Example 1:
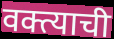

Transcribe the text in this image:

वक्त्याची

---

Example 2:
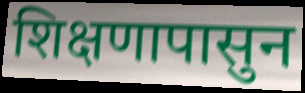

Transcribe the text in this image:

शिक्षणापासुन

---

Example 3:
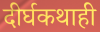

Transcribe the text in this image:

दीर्घकथाही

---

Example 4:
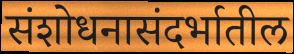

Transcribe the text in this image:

संशोधनासंदर्भातील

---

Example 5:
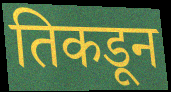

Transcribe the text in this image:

तिकडून